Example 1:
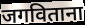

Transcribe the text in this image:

जगविताना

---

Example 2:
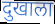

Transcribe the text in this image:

दुखाला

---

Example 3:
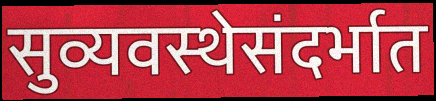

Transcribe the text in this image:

सुव्यवस्थेसंदर्भात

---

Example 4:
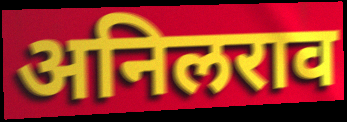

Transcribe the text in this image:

अनिलराव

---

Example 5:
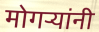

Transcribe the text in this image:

मोगऱ्यांनी